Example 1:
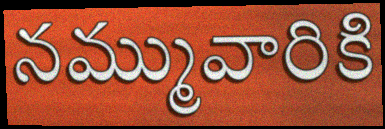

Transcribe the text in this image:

నమ్మువారికి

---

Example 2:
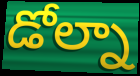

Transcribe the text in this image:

డోల్నా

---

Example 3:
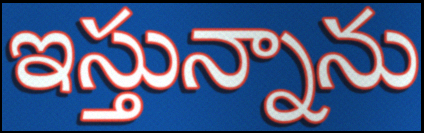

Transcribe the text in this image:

ఇస్తున్నాను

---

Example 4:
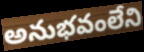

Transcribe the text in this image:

అనుభవంలేని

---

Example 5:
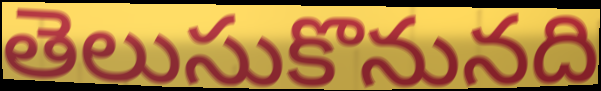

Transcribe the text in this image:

తెలుసుకొనునది